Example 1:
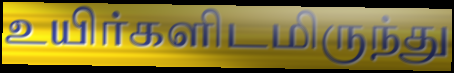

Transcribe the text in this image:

உயிர்களிடமிருந்து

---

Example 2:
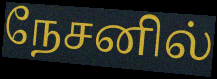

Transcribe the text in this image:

நேசனில்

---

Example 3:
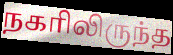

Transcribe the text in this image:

நகரிலிருந்த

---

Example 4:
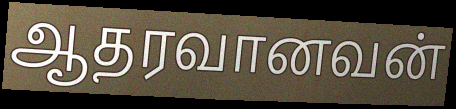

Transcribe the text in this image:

ஆதரவானவன்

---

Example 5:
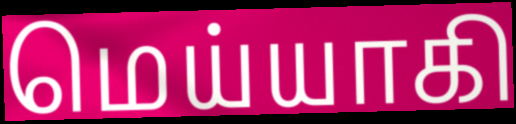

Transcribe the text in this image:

மெய்யாகி